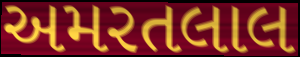
અમરતલાલ